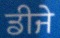
ਡੀਜੇ